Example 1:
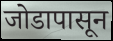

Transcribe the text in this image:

जोडापासून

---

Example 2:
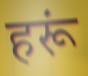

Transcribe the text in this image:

हरूं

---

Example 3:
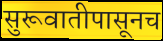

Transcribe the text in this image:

सुरूवातीपासूनच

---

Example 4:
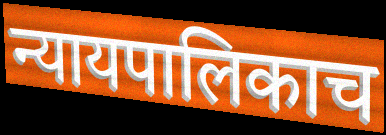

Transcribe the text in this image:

न्यायपालिकाच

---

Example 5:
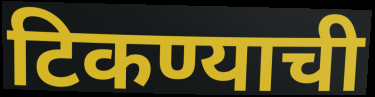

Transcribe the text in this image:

टिकण्याची